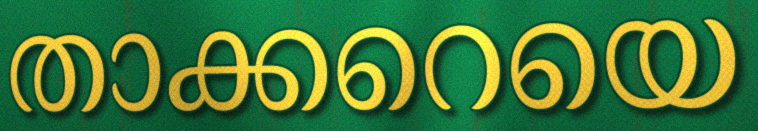
താക്കറെയെ